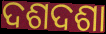
ଦଶଦଶା